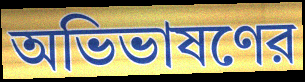
অভিভাষণের